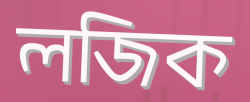
লজিক